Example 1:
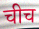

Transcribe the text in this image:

चीच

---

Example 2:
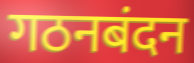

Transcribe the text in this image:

गठनबंदन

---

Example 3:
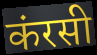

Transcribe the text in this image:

कंरसी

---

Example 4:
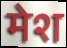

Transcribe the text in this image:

मेश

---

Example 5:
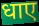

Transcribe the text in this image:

धाए